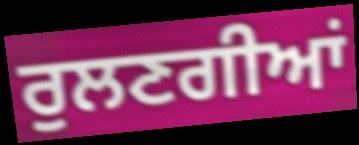
ਰੁਲਣਗੀਆਂ